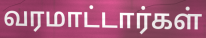
வரமாட்டார்கள்